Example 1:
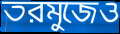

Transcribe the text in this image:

তরমুজেও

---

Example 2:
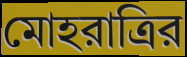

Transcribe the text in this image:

মোহরাত্রির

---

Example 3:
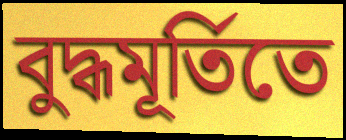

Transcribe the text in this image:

বুদ্ধমূর্তিতে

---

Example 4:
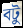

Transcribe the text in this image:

বটু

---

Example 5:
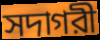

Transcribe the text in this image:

সদাগরী